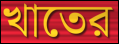
খাতের